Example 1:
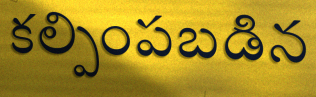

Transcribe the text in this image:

కల్పింపబడిన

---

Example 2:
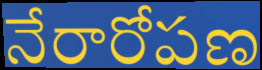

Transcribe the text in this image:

నేరారోపణ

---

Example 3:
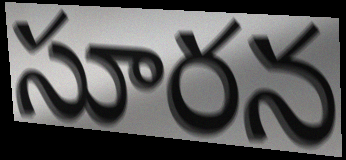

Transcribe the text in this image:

సూరన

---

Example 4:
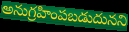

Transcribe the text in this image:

అనుగ్రహింపబడుదునని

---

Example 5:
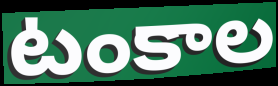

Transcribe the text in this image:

టంకాల